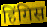
हिंगिस